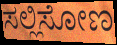
ಸಲ್ಲಿಸೋಣ